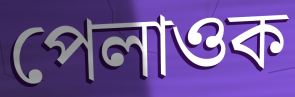
পেলাওক